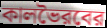
কালভৈরবের